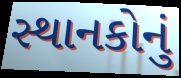
સ્થાનકોનું